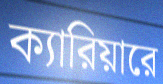
ক্যারিয়ারে